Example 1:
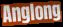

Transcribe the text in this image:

Anglong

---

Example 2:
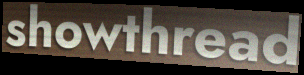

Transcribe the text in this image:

showthread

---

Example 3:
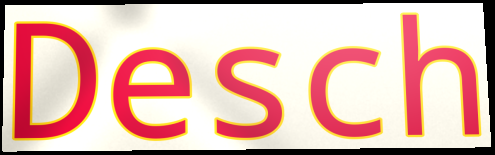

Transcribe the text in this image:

Desch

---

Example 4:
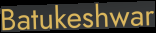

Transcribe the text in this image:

Batukeshwar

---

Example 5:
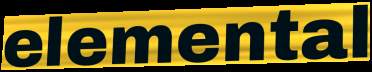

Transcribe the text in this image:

elemental